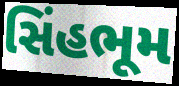
સિંહભૂમ